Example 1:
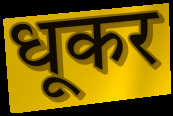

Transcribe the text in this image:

धूकर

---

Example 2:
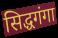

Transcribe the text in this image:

सिद्धगंगा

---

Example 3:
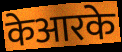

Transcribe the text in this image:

केआरके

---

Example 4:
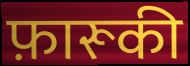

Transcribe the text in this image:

फ़ारूकी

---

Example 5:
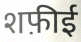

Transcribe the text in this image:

शफ़ीई